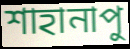
শাহানাপু